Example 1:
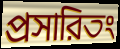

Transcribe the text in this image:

প্রসারিতং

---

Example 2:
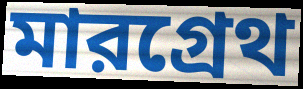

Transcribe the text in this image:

মারগ্রেথ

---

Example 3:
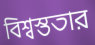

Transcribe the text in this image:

বিশ্বস্ততার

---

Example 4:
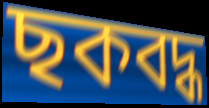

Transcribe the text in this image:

ছকবদ্ধ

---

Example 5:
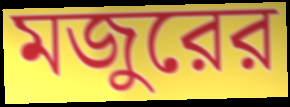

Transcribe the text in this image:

মজুরের